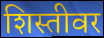
शिस्तीवर